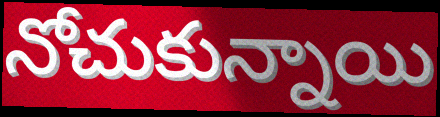
నోచుకున్నాయి